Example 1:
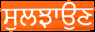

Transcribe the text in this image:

ਸੁਲਝਾਉਣ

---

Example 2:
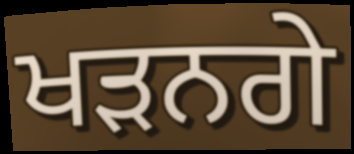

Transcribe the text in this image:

ਖੜਨਗੇ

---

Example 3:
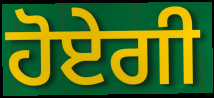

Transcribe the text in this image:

ਹੋਏਗੀ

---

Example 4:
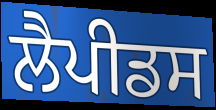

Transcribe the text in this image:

ਲੈਪੀਡਸ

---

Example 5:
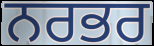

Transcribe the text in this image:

ਨਰਭਰ